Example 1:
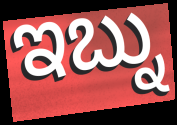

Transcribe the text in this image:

ಇಬ್ನು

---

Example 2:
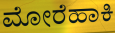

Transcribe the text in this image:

ಮೋರೆಹಾಕಿ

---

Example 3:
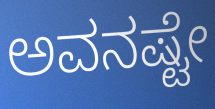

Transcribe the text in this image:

ಅವನಷ್ಟೇ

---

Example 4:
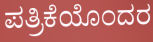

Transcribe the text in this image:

ಪತ್ರಿಕೆಯೊಂದರ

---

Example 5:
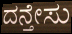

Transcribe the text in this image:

ದನ್ತೇಸು